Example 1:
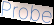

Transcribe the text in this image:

Probe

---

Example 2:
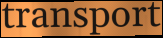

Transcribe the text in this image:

transport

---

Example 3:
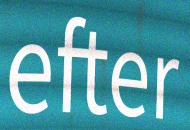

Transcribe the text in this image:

efter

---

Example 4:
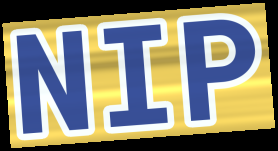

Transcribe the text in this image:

NIP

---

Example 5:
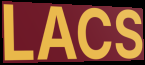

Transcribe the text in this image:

LACS